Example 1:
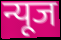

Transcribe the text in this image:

न्यूज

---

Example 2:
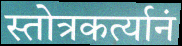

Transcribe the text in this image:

स्तोत्रकर्त्यानं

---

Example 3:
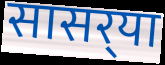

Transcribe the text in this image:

सासर्‍या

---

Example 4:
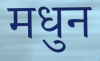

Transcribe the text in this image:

मधुन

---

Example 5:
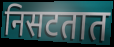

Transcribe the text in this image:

निसटतात